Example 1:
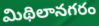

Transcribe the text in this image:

మిథిలానగరం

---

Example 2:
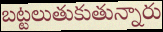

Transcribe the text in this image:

బట్టలుతుకుతున్నారు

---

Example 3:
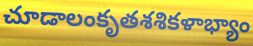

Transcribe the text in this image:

చూడాలంకృతశశికళాభ్యాం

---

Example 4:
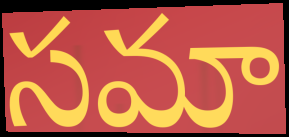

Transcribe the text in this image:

సమా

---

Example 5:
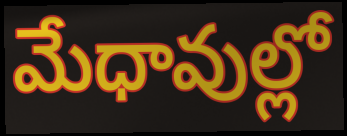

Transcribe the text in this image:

మేధావుల్లో